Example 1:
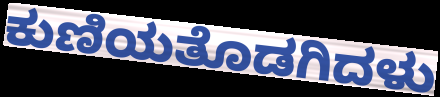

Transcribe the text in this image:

ಕುಣಿಯತೊಡಗಿದಳು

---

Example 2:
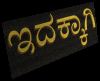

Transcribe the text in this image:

ಇದಕ್ಕಾಗಿ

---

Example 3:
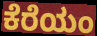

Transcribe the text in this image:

ಕೆರೆಯಂ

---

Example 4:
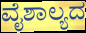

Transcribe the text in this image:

ವೈಶಾಲ್ಯದ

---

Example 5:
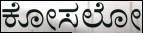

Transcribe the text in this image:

ಕೋಸಲೋ